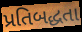
પ્રતિબદ્ધતા